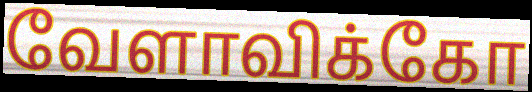
வேளாவிக்கோ